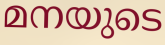
മനയുടെ